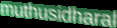
muthusidharal